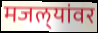
मजल्यांवर